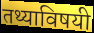
तथ्याविषयी